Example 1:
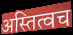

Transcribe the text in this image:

अस्तित्वच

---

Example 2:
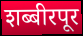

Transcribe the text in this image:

शब्बीरपूर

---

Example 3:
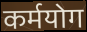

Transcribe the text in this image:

कर्मयोग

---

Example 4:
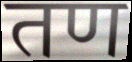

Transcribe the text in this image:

तण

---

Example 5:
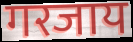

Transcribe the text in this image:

गरजाय